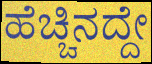
ಹೆಚ್ಚಿನದ್ದೇ